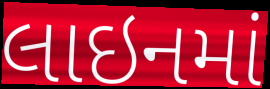
લાઇનમાં